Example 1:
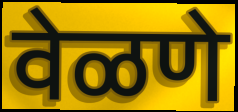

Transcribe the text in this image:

वेळणे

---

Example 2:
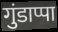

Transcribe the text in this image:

गुंडाप्पा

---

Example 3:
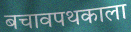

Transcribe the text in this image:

बचावपथकाला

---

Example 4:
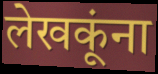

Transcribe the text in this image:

लेखकूंना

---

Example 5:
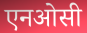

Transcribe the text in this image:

एनओसी